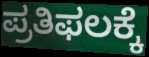
ಪ್ರತಿಫಲಕ್ಕೆ